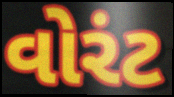
વોરંટ